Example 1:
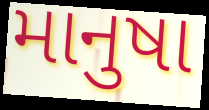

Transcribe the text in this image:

માનુષા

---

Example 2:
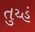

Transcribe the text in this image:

તુય્હં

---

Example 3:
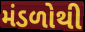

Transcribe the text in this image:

મંડળોથી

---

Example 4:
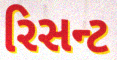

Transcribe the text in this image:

રિસન્ટ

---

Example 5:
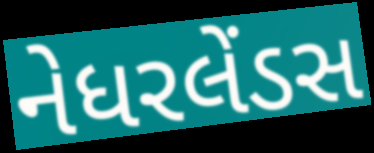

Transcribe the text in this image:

નેધરલેંડસ